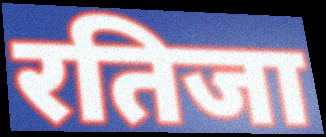
रतिजा